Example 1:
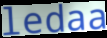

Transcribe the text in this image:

ledaa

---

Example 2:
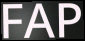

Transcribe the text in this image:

FAP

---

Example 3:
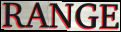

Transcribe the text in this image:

RANGE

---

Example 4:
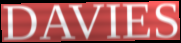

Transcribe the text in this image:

DAVIES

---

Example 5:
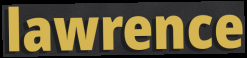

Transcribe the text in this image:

lawrence